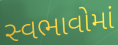
સ્વભાવોમાં